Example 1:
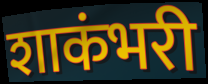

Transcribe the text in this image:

शाकंभरी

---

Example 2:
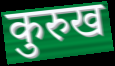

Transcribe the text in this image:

कुरुख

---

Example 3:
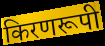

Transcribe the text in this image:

किरणरूपी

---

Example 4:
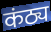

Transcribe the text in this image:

कंठ्य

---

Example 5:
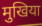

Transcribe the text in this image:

मुखिया